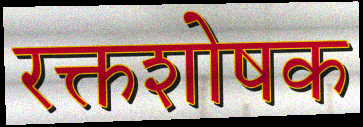
रक्तशोषक